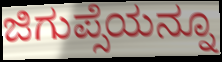
ಜಿಗುಪ್ಸೆಯನ್ನೂ